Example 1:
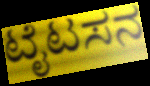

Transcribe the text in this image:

ಟೈಟಸನ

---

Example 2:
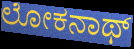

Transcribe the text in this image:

ಲೋಕನಾಥ್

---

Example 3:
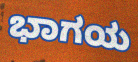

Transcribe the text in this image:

ಭಾಗಯ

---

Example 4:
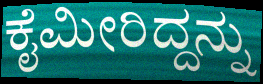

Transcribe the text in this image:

ಕೈಮೀರಿದ್ದನ್ನು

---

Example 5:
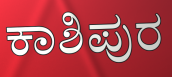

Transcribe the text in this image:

ಕಾಶಿಪುರ